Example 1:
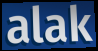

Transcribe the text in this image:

alak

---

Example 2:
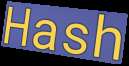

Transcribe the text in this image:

Hash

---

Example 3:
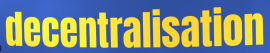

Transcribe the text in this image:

decentralisation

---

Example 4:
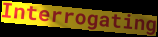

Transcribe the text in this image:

Interrogating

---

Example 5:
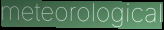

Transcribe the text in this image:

meteorological